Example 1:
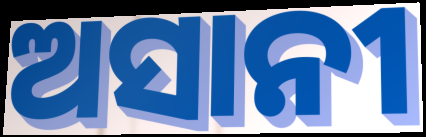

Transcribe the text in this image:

ଅସାନୀ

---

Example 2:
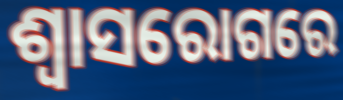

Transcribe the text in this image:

ଶ୍ଵାସରୋଗରେ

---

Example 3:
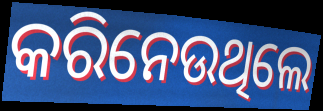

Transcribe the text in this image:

କରିନେଉଥିଲେ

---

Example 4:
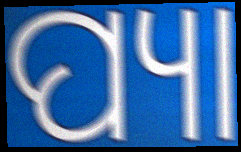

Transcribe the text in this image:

ପ୍ୟା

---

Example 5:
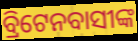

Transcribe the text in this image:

ବ୍ରିଟେନବାସୀଙ୍କ